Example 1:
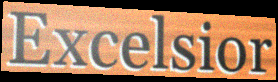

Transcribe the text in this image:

Excelsior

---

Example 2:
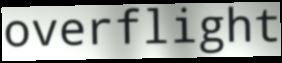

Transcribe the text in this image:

overflight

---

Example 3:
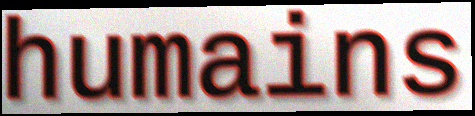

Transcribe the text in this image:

humains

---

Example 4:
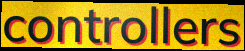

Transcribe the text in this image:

controllers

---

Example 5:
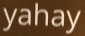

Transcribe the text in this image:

yahay